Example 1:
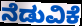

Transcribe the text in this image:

ನೆಡುವಿಕೆ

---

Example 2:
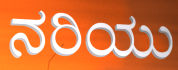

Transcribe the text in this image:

ನರಿಯು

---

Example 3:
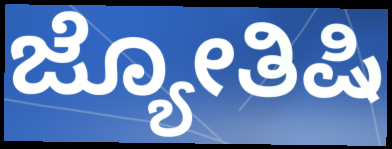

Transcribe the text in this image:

ಜ್ಯೋತಿಷಿ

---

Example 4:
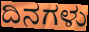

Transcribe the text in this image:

ದಿನಗಳು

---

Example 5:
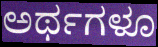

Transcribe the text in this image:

ಅರ್ಥಗಳೂ